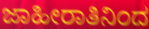
ಜಾಹೀರಾತಿನಿಂದ